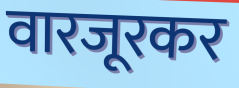
वारजूरकर